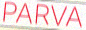
PARVA